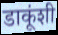
डाकूंशी